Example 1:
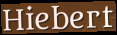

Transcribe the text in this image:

Hiebert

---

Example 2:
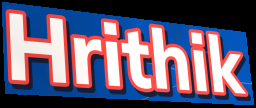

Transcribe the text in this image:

Hrithik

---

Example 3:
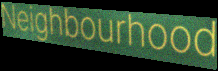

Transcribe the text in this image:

Neighbourhood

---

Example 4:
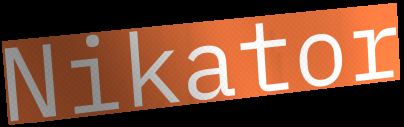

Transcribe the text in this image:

Nikator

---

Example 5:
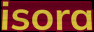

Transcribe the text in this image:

isora